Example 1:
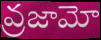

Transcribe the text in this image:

వ్రజామో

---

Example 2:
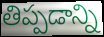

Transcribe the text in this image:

తిప్పడాన్ని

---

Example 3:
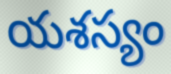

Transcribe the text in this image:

యశస్యం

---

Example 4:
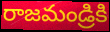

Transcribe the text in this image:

రాజమండ్రికి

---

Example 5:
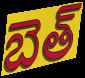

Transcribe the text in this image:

బెత్